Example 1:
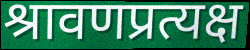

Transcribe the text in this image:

श्रावणप्रत्यक्ष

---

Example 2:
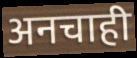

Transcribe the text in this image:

अनचाही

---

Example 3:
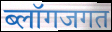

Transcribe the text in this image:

ब्लॉगजगत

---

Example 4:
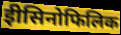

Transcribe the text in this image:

ईोसिनोफिलिक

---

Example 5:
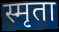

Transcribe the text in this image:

स्मृता